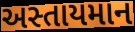
અસ્તાયમાન